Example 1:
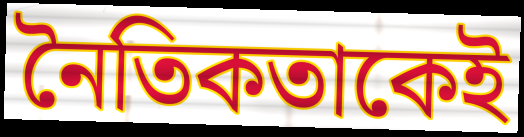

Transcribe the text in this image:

নৈতিকতাকেই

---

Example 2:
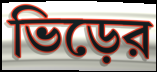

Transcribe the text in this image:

ভিড়ের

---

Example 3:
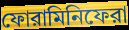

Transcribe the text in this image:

ফোরামিনিফেরা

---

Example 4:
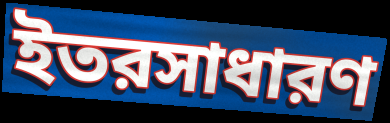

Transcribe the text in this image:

ইতরসাধারণ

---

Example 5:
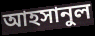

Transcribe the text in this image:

আহসানুল